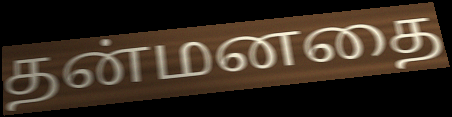
தன்மனதை